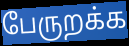
பேருறக்க